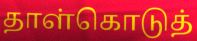
தாள்கொடுத்